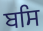
ਬਸਿ